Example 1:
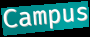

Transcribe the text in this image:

Campus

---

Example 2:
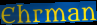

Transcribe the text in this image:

Ehrman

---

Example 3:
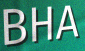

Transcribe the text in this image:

BHA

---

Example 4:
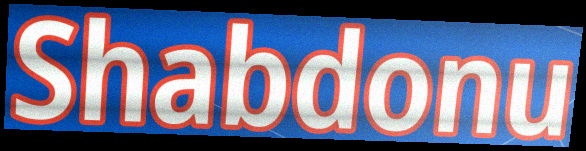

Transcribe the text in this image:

Shabdonu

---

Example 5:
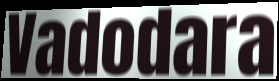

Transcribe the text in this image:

Vadodara